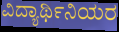
ವಿದ್ಯಾರ್ಥಿನಿಯರ